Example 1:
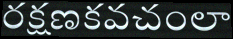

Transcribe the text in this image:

రక్షణకవచంలా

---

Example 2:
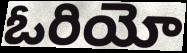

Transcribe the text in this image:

ఓరియో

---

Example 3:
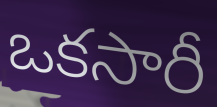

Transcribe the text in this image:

ఒకసారీ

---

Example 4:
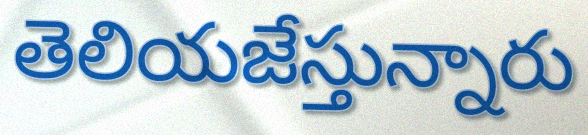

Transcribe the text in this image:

తెలియజేస్తున్నారు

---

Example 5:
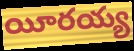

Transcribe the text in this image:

యీరయ్య